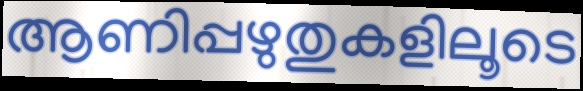
ആണിപ്പഴുതുകളിലൂടെ